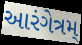
આરંગેત્રમ્